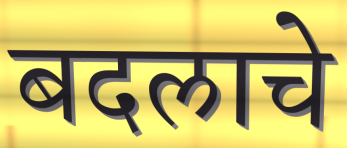
बदलाचे